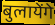
बुलायेंगे